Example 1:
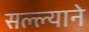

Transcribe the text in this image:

सल्ल्याने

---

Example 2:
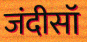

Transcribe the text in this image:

जंदीसॉ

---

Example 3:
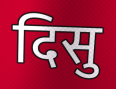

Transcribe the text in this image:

दिसु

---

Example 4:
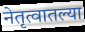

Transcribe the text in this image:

नेतृत्वातल्या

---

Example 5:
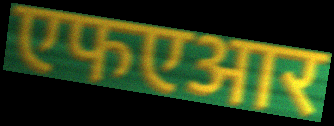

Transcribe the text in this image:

एफएआर